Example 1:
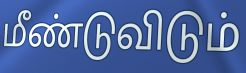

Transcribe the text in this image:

மீண்டுவிடும்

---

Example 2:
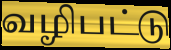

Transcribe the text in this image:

வழிபட்டு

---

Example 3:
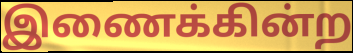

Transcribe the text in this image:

இணைக்கின்ற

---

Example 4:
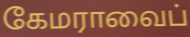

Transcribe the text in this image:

கேமராவைப்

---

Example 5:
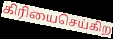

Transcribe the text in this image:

கிரியைசெய்கிற